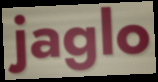
jaglo